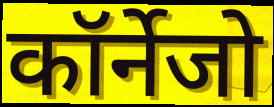
कॉर्नेजो